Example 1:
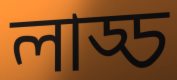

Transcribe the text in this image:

লাড্ড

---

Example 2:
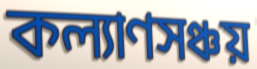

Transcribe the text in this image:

কল্যাণসঞ্চয়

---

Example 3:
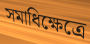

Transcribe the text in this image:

সমাধিক্ষেত্রে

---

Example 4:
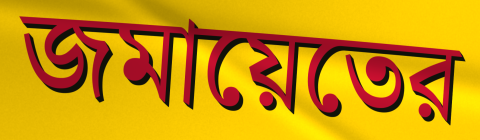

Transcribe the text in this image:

জমায়েতের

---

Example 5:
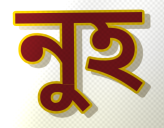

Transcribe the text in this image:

নুহ